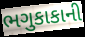
ભગુકાકાની